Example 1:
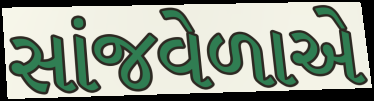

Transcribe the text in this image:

સાંજવેળાએ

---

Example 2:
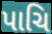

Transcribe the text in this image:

પાચિ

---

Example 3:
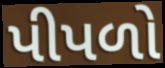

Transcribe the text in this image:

પીપળો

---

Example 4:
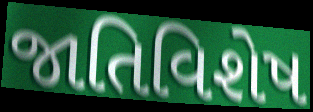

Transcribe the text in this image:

જાતિવિશેષ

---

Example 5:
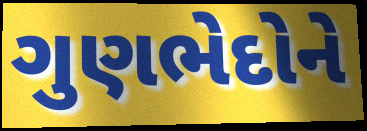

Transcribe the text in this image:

ગુણભેદોને